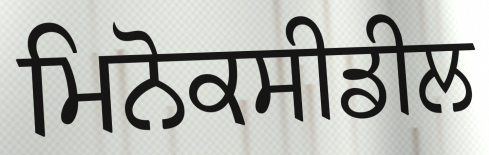
ਮਿਨੋਕਸੀਡੀਲ